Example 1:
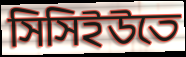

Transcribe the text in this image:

সিসিইউতে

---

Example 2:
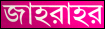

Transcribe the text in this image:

জাহরাহর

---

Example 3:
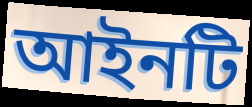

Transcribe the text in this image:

আইনটি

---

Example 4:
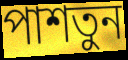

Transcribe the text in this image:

পাশতুন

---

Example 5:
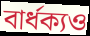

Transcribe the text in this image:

বার্ধক্যও